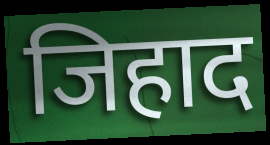
जिहाद